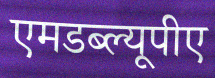
एमडब्ल्यूपीए